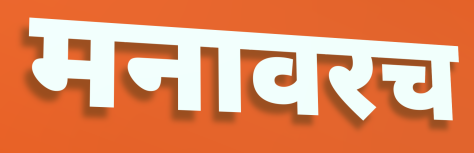
मनावरच